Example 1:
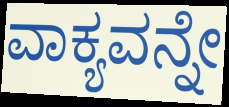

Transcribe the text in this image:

ವಾಕ್ಯವನ್ನೇ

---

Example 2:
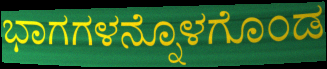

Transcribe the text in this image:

ಭಾಗಗಳನ್ನೊಳಗೊಂಡ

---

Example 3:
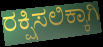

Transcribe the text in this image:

ರಕ್ಷಿಸಲಿಕ್ಕಾಗಿ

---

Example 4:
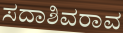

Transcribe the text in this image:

ಸದಾಶಿವರಾವ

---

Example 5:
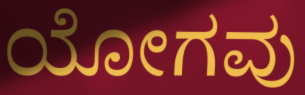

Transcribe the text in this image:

ಯೋಗವು